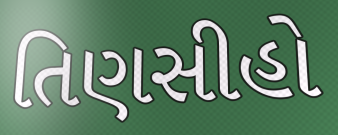
તિણસીહો